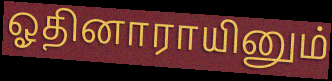
ஓதினாராயினும்